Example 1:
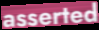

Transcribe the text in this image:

asserted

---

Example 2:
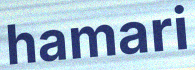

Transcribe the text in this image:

hamari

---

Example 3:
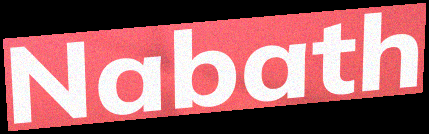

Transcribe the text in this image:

Nabath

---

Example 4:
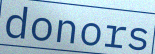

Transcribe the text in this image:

donors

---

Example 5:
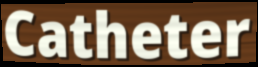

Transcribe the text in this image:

Catheter